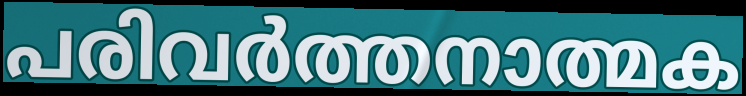
പരിവർത്തനാത്മക